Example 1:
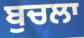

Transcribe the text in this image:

ਬੁਚਲਾ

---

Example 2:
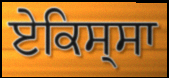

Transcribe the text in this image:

ਏਕਿਸ੍ਸਾ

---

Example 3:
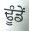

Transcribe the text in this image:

ਢੂੰਡੇਂ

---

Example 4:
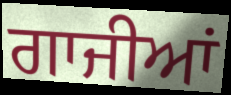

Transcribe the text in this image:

ਗਾਜੀਆਂ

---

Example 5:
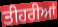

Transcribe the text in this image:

ਤੀਹਰੀਆਂ